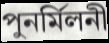
পুনর্মিলনী